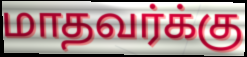
மாதவர்க்கு